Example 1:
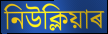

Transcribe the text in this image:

নিউক্লিয়াৰ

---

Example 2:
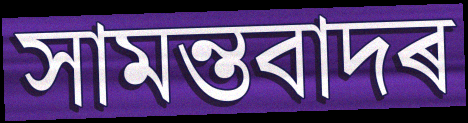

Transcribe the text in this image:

সামন্তবাদৰ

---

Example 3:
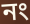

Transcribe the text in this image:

নং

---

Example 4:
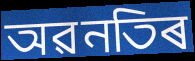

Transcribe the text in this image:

অৱনতিৰ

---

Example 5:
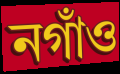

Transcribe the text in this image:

নগাঁও